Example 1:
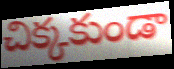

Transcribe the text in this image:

చిక్కకుండా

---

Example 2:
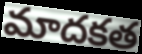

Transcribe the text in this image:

మాదకత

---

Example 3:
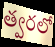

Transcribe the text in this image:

త్వరలో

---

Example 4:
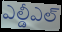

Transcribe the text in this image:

ఎల్డీఎల్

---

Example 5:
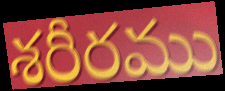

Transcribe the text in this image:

శరీరము